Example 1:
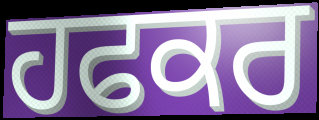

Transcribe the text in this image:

ਹਫਕਰ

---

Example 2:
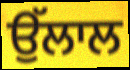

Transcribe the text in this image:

ਉੱਲਾਲ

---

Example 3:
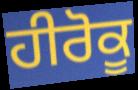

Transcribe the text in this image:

ਹੀਰੋਕੂ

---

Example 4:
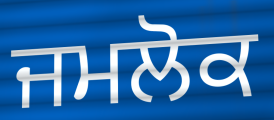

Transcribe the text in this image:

ਜਮਲੋਕ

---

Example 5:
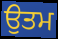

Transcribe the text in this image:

ਉਤਮ